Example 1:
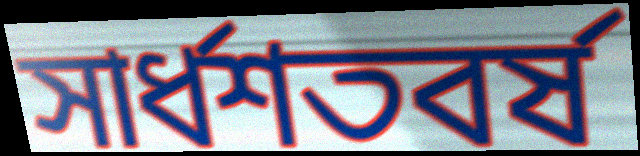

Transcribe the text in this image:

সার্ধশতবর্ষ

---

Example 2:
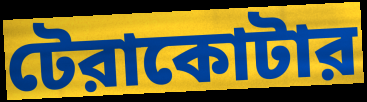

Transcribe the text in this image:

টেরাকোটার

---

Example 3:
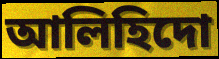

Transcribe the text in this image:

আলিহিদো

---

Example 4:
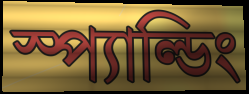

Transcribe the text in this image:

স্প্যাল্ডিং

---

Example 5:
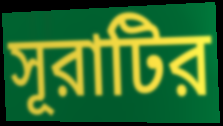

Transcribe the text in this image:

সূরাটির